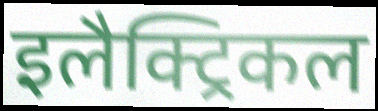
इलैक्ट्रिकल